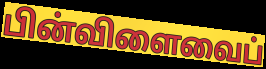
பின்விளைவைப்